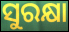
ସୁରକ୍ଷା